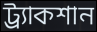
ট্র্যাকশান